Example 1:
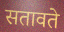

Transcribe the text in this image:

सतावते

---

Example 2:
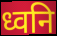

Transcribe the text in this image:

ध्वनि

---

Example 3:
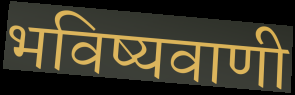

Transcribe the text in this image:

भविष्यवाणी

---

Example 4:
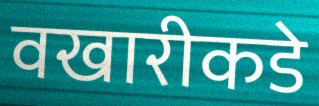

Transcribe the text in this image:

वखारीकडे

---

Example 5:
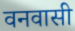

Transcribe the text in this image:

वनवासी